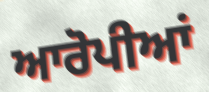
ਆਰੋਪੀਆਂ